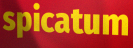
spicatum